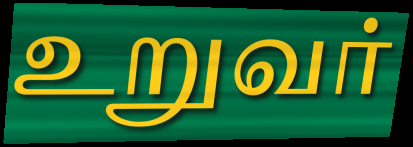
உறுவர்